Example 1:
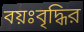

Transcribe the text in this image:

বয়ঃবৃদ্ধির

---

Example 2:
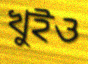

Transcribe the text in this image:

খুইও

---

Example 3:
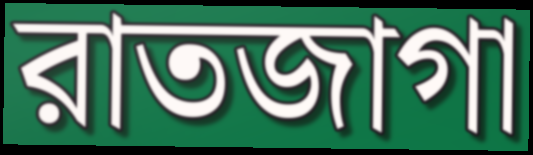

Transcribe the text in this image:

রাতজাগা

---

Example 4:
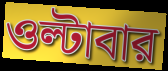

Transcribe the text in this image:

ওল্টাবার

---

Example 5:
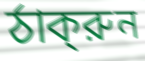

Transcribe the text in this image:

ঠাক্‌রুন